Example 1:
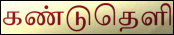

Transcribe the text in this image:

கண்டுதெளி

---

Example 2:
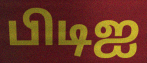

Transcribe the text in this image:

பிடிஐ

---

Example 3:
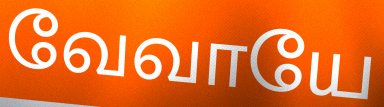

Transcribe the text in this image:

வேவாயே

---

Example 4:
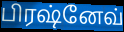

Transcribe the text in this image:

பிரஷ்னேவ்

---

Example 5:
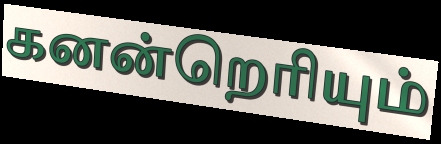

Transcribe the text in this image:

கனன்றெரியும்